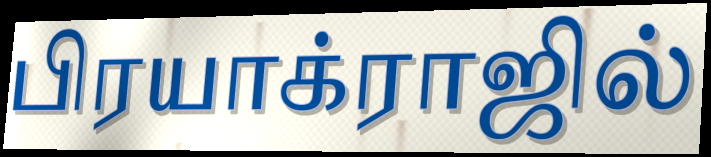
பிரயாக்ராஜில்